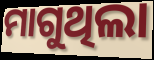
ମାଗୁଥିଲା